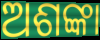
ଅଶଙ୍କା